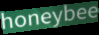
honeybee